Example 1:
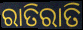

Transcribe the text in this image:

ରାତିରାତି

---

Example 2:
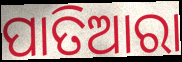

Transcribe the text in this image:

ପାତିଆରା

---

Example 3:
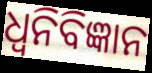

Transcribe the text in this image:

ଧ୍ୱନିବିଜ୍ଞାନ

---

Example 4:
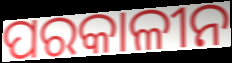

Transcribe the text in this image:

ପରକାଳୀନ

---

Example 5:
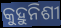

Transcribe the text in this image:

କୁହୁନିଶୀ